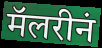
मॅलरीनं